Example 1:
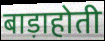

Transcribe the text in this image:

बाड़ाहोती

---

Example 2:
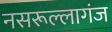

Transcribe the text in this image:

नसरूल्लागंज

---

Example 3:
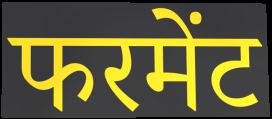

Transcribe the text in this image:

फरमेंट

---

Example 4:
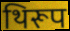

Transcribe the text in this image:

थिरूप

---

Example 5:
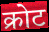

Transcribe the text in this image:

क्रोट